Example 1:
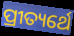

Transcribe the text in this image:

ପ୍ରୀତ୍ୟର୍ଥେ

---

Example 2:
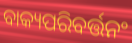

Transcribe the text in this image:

ବାକ୍ୟପରିବର୍ତ୍ତନଂ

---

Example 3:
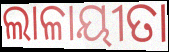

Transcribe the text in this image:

ଲାଳାୟୀତା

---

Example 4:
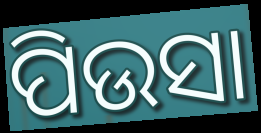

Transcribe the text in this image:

ପିଉସା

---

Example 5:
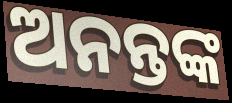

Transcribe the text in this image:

ଅନନ୍ତଙ୍କ